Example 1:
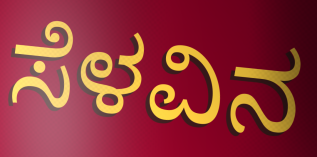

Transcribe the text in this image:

ಸೆಳವಿನ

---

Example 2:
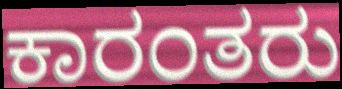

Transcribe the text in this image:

ಕಾರಂತರು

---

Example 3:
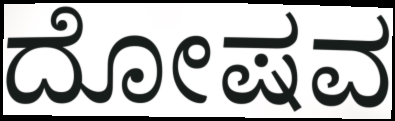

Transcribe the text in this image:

ದೋಷವ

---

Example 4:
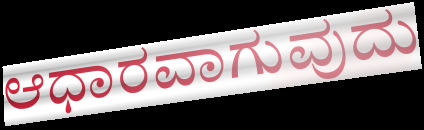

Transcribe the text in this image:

ಆಧಾರವಾಗುವುದು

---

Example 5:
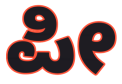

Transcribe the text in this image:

ಪೀ